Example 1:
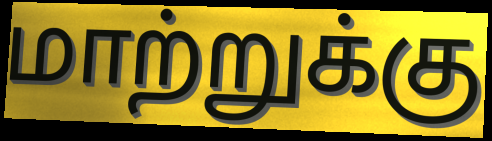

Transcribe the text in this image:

மாற்றுக்கு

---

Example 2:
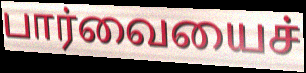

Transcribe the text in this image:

பார்வையைச்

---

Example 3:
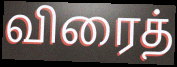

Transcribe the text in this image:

விரைத்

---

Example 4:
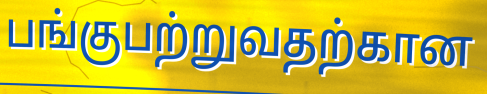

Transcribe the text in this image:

பங்குபற்றுவதற்கான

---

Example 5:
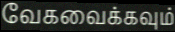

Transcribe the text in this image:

வேகவைக்கவும்